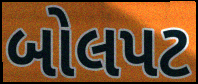
બોલપટ